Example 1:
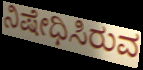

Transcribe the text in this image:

ನಿಷೇಧಿಸಿರುವ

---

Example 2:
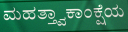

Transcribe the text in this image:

ಮಹತ್ತ್ವಾಕಾಂಕ್ಷೆಯ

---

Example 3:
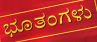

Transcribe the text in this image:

ಭೂತಂಗಳು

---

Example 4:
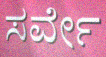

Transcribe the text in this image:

ಸರ್ವೇ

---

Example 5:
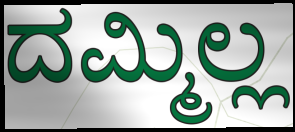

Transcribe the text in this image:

ದಮ್ಮಿಲ್ಲ